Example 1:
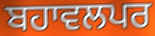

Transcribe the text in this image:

ਬਹਾਵਲਪਰ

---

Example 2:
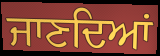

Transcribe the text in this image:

ਜਾਣਦਿਆਂ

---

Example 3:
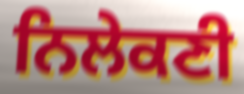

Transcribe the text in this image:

ਨਿਲੇਕਣੀ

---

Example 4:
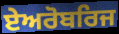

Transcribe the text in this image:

ਏਅਰੋਬਰਿਜ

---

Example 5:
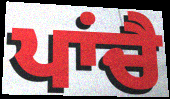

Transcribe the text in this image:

ਪਾਂਚੈ